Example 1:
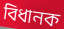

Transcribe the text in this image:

বিধানক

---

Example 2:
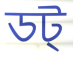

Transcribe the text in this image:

ডট্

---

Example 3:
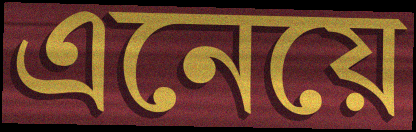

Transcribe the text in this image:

এনেয়ে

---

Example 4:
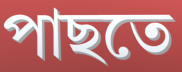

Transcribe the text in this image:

পাছতে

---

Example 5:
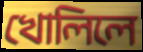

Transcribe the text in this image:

খোলিলে